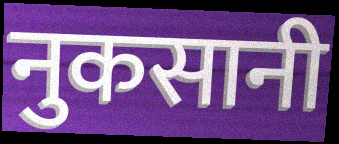
नुकसानी